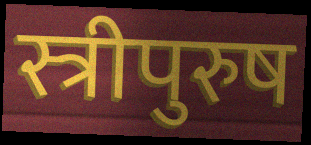
स्त्रीपुरुष